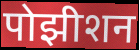
पोझीशन